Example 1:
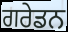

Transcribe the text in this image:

ਗਰੇਡਨ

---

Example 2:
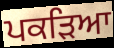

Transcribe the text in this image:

ਪਕੜਿਆ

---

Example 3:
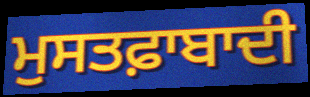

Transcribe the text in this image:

ਮੁਸਤਫ਼ਾਬਾਦੀ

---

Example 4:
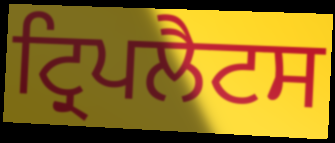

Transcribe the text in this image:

ਟ੍ਰਿਪਲੈਟਸ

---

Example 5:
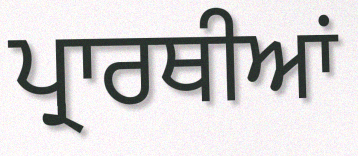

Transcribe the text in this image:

ਪ੍ਰਾਰਥੀਆਂ